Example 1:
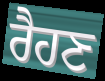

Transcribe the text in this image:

ਰੈਹਣ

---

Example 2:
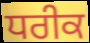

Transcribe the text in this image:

ਧਰੀਕ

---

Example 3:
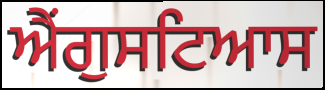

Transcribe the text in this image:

ਐਂਗੁਸਟਿਆਸ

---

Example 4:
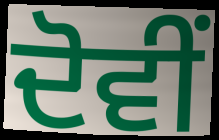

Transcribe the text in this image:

ਦੋਵੀਂ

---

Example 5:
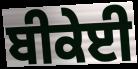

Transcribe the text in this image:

ਬੀਕੇਈ